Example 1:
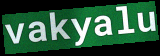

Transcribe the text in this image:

vakyalu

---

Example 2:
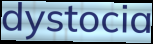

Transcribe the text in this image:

dystocia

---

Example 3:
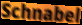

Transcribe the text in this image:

Schnabel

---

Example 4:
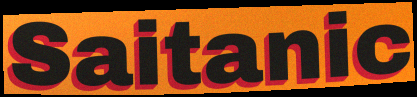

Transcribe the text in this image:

Saitanic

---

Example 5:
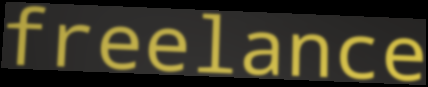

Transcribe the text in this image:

freelance